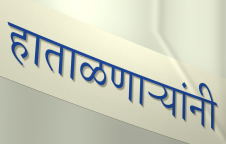
हाताळणाऱ्यांनी